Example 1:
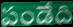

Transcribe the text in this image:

పండేది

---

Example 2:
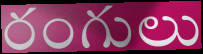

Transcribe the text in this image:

రంగులు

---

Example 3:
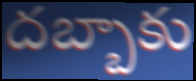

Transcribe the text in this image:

దబ్బాకు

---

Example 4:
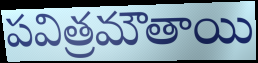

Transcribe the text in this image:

పవిత్రమౌతాయి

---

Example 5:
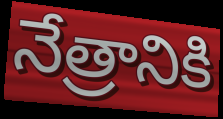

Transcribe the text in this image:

నేత్రానికి